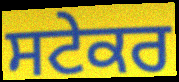
ਸਟੇਕਰ